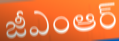
జీఎంఆర్